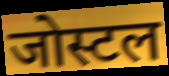
जोस्टल